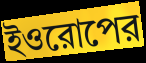
ইওরোপের